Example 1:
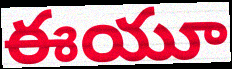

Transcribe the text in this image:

ఈయూ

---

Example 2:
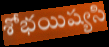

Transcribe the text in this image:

శోభయిష్యసి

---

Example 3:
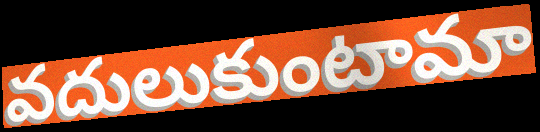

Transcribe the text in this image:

వదులుకుంటామా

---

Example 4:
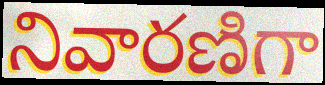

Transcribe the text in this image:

నివారణిగా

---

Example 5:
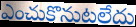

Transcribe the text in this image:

ఎంచుకొనుటలేదు